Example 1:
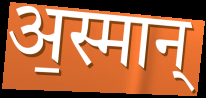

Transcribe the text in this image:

अ॒स्मान्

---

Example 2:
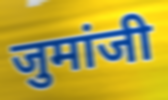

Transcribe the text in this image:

जुमांजी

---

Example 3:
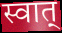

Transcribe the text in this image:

स्वात्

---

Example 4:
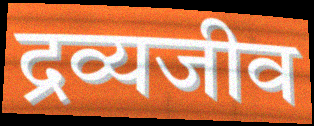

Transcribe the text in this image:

द्रव्यजीव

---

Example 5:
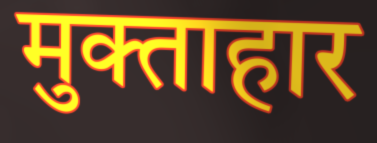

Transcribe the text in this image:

मुक्ताहार